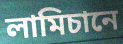
লামিচানে